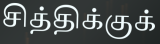
சித்திக்குக்